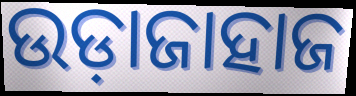
ଉଡ଼ାଜାହାଜ